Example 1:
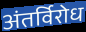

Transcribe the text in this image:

अंतर्विरोध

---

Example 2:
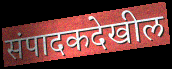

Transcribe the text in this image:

संपादकदेखील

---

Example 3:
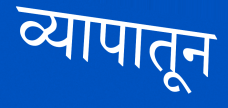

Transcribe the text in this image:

व्यापातून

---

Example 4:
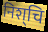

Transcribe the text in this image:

निश्चि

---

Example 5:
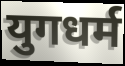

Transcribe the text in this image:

युगधर्म